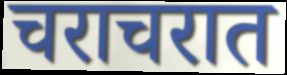
चराचरात